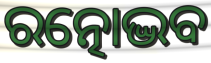
ରତ୍ନୋଦ୍ଭବ